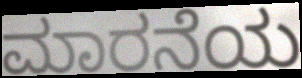
ಮಾರನೆಯ